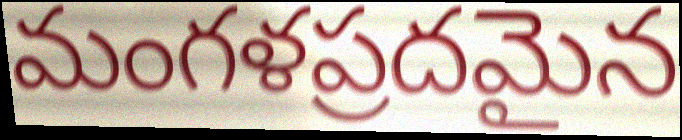
మంగళప్రదమైన